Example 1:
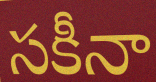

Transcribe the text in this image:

సకీనా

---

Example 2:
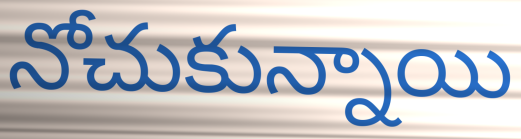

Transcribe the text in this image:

నోచుకున్నాయి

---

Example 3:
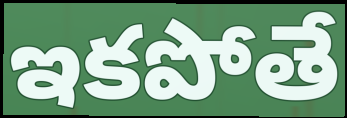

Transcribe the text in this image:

ఇకపోతే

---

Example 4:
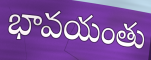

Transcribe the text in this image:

భావయంతు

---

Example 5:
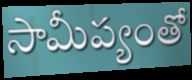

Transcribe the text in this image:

సామీప్యంతో